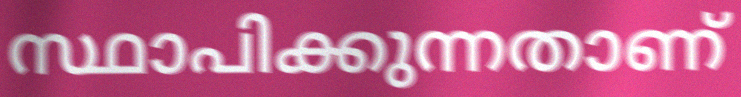
സ്ഥാപിക്കുന്നതാണ്